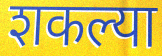
शकल्या